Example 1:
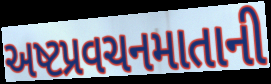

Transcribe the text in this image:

અષ્ટપ્રવચનમાતાની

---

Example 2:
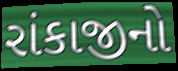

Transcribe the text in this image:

રાંકાજીનો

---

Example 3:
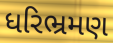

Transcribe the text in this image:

ધરિભ્રમણ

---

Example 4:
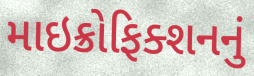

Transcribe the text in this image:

માઇક્રોફિક્શનનું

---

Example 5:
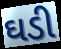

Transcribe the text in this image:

ઘડી